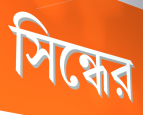
সিন্ধের